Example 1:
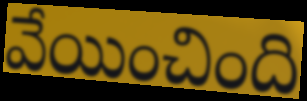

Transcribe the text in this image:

వేయించింది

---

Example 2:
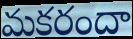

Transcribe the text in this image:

మకరందా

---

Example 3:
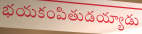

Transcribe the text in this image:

భయకంపితుడయ్యాడు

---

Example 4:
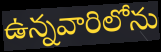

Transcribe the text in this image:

ఉన్నవారిలోను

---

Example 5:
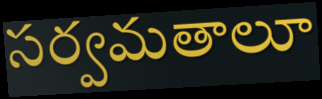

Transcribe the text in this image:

సర్వమతాలూ